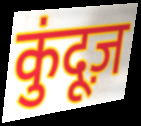
कुंदूज़